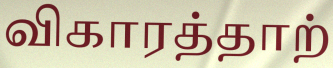
விகாரத்தாற்